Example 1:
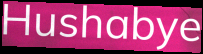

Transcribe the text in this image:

Hushabye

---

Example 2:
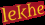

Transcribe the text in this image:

lekhe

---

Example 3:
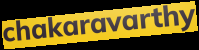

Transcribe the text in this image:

chakaravarthy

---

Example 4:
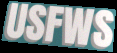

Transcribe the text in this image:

USFWS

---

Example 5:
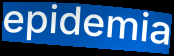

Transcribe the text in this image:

epidemia